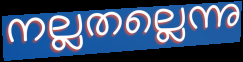
നല്ലതല്ലെന്നു